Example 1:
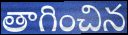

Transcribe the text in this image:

తాగించిన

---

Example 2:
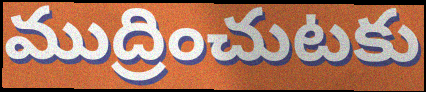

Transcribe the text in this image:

ముద్రించుటకు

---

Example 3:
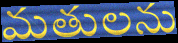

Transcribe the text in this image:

మతులను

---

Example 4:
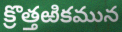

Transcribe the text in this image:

క్రొత్తఱికమున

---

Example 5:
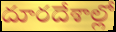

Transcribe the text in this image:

దూరదేశాల్లో